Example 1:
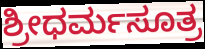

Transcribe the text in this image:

ಶ್ರೀಧರ್ಮಸೂತ್ರ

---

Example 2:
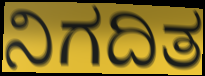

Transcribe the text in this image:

ನಿಗದಿತ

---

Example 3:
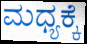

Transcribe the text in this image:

ಮಧ್ಯಕ್ಕೆ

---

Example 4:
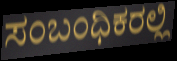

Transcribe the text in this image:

ಸಂಬಂಧಿಕರಲ್ಲಿ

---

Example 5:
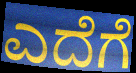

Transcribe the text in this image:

ಎದೆಗೆ